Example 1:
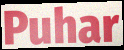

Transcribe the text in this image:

Puhar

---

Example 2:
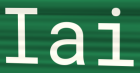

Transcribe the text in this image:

Iai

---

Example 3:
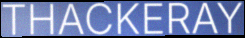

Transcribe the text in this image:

THACKERAY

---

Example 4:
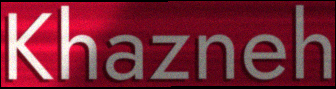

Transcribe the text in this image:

Khazneh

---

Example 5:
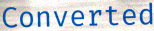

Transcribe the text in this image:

Converted